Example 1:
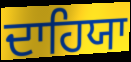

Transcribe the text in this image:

ਦਾਹਿਯਾ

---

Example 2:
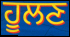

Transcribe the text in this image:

ਹੂਲਣ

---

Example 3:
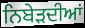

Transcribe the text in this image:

ਨਿਬੇੜਦੀਆਂ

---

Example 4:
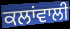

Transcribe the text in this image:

ਕਲਾਂਵਾਲੀ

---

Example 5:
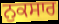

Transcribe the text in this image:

ਨੁਕਸਾਰ